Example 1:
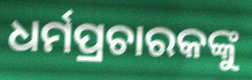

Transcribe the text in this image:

ଧର୍ମପ୍ରଚାରକଙ୍କୁ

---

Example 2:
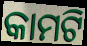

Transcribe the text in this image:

କାମଟି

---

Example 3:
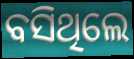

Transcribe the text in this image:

ବସିଥିଲେ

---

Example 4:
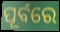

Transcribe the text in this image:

ପୂର୍ବରେ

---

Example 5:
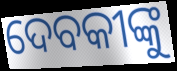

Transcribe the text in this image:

ଦେବକୀଙ୍କୁ